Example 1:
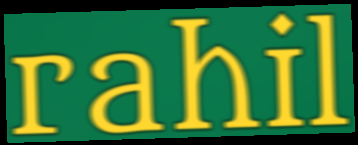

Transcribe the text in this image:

rahil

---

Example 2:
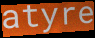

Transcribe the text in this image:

atyre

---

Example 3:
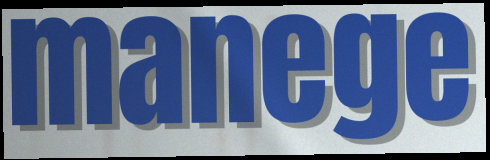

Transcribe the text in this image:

manege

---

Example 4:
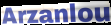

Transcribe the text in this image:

Arzanlou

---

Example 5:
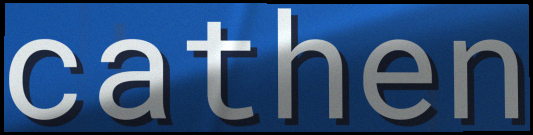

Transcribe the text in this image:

cathen